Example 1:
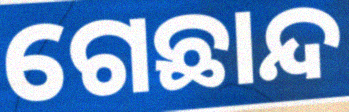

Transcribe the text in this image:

ଗେଛାନ୍ଦ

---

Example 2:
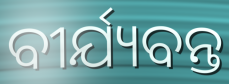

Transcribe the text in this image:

ବୀର୍ଯ୍ୟବନ୍ତ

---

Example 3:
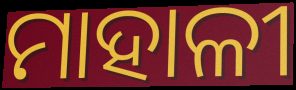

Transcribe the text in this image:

ମାହାଳୀ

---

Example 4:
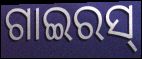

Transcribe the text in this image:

ଗାଇରସ୍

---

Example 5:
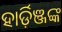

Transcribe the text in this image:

ହାର୍ଡ଼ିଞ୍ଜଙ୍କ